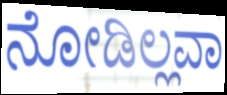
ನೋಡಿಲ್ಲವಾ